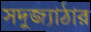
সদুজ্যাঠার